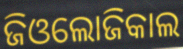
ଜିଓଲୋଜିକାଲ